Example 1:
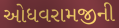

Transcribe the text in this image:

ઓધવરામજીની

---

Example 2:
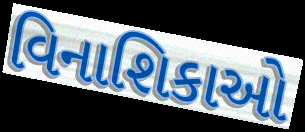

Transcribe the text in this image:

વિનાશિકાઓ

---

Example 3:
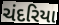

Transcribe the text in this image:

ચંદરિયા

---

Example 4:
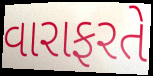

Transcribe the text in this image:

વારાફરતે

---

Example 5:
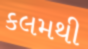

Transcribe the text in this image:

કલમથી